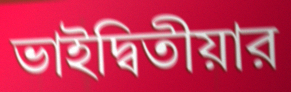
ভাইদ্বিতীয়ার